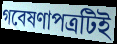
গবেষণাপত্রটিই